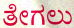
ತೇಗಲು